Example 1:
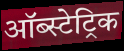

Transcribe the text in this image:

ऑब्स्टेट्रिक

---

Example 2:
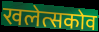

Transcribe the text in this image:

खलेत्सकोव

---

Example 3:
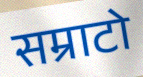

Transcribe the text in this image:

सम्राटो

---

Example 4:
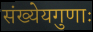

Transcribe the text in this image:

संख्येयगुणाः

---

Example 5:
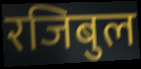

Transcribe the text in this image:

रजिबुल